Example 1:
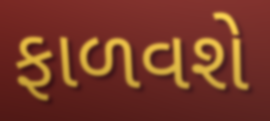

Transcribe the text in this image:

ફાળવશે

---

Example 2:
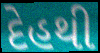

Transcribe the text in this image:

દેહથી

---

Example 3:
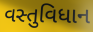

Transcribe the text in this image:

વસ્તુવિધાન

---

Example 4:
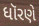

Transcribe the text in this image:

ધૉરણે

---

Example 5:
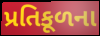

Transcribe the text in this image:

પ્રતિકૂળના